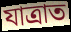
যাত্ৰাত